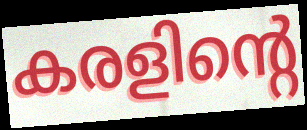
കരളിന്റെ